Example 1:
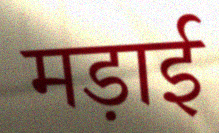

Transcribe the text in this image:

मड़ाई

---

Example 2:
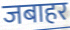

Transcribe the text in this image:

जबाहर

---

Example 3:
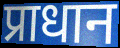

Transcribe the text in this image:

प्राधान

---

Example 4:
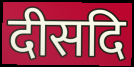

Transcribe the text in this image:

दीसदि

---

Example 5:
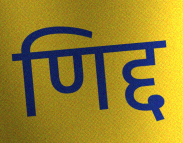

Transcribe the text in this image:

णिद्द